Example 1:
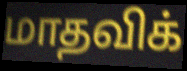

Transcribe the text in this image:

மாதவிக்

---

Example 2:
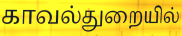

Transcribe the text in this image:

காவல்துறையில்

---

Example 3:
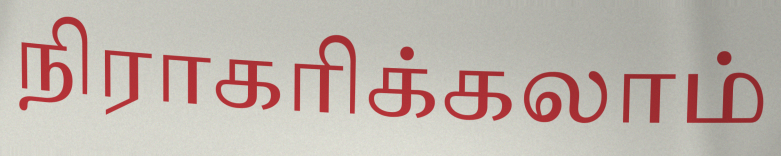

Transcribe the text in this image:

நிராகரிக்கலாம்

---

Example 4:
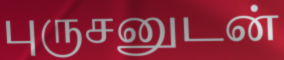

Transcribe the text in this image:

புருசனுடன்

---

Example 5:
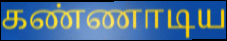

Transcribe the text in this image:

கண்ணாடிய